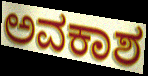
ಅವಕಾಶ